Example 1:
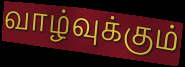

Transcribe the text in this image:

வாழ்வுக்கும்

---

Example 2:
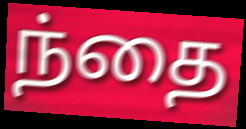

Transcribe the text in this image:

ந்தை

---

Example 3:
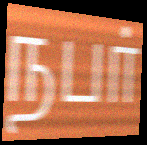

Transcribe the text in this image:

நபர்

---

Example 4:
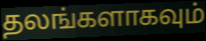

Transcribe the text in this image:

தலங்களாகவும்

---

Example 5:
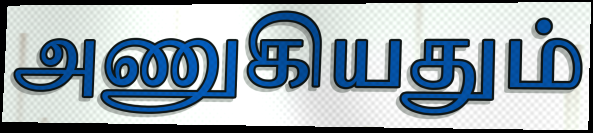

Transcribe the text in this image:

அணுகியதும்